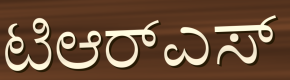
ಟಿಆರ್‌ಎಸ್